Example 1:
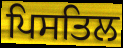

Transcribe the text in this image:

ਪਿਸਤਿਲ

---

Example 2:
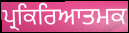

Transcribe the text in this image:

ਪ੍ਰਕਿਰਿਆਤਮਕ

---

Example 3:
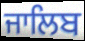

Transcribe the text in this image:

ਜਾਲਿਬ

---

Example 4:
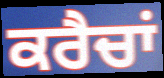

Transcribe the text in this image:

ਕਰੈਚਾਂ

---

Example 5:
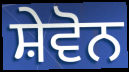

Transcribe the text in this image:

ਸ਼ੇਵੋਨ